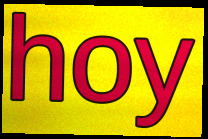
hoy